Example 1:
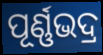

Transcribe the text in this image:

ପୂର୍ଣ୍ଣଭଦ୍ର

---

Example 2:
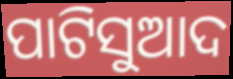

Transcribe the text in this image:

ପାଟିସୁଆଦ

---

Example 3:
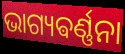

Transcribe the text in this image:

ଭାଗ୍ୟଵର୍ଣ୍ଣନା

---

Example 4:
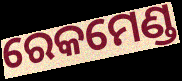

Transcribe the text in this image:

ରେକମେଣ୍ଡ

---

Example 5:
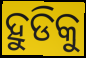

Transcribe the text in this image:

ହୁଡିକୁ